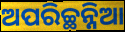
ଅପରିଚ୍ଛନ୍ନିଆ